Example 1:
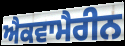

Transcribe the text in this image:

ਐਕਵਾਮੈਰੀਨ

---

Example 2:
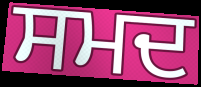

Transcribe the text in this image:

ਸਮਦ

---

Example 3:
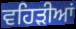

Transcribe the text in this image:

ਵਹਿੜੀਆਂ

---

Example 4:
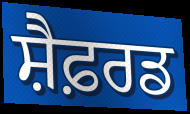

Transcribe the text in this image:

ਸ਼ੈਫ਼ਰਡ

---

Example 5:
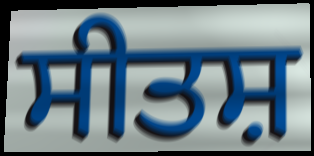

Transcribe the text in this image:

ਸੀਤਸ਼